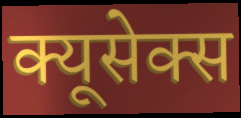
क्यूसेक्स